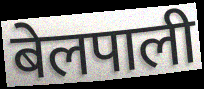
बेलपाली